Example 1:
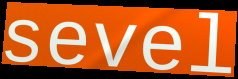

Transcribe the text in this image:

sevel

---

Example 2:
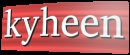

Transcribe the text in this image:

kyheen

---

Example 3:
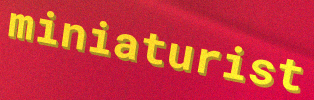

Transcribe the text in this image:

miniaturist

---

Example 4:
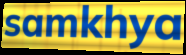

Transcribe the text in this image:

samkhya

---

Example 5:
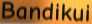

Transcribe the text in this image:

Bandikui